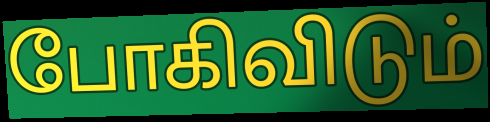
போகிவிடும்